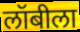
लॉबीला